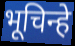
भूचिन्हे